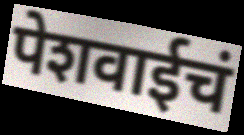
पेशवाईचं